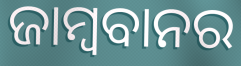
ଜାମ୍ବବାନର